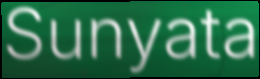
Sunyata